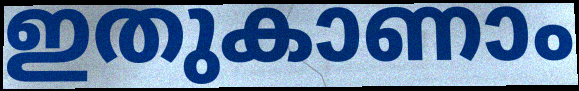
ഇതുകാണാം